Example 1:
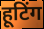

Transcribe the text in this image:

हूटिंग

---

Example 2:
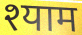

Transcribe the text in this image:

श्याम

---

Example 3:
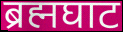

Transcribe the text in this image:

ब्रह्मघाट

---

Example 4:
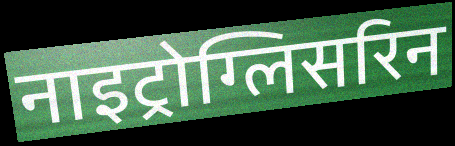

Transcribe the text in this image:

नाइट्रोग्लिसरिन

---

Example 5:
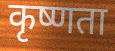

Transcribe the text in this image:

कृष्णता